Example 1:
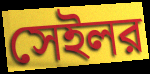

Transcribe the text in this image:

সেইলর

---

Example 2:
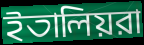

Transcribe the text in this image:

ইতালিয়রা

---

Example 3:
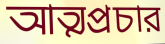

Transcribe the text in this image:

আত্মপ্রচার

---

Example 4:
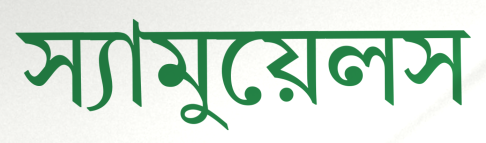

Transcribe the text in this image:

স্যামুয়েলস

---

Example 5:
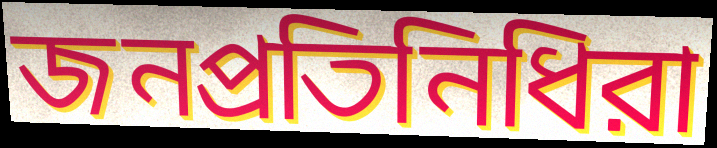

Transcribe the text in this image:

জনপ্রতিনিধিরা